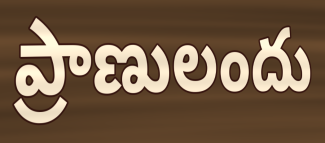
ప్రాణులందు